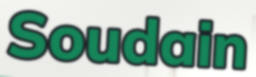
Soudain